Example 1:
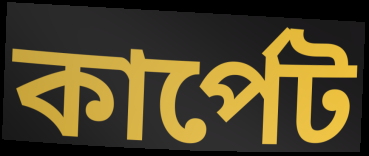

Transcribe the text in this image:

কার্পেট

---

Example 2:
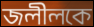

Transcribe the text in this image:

জলীলকে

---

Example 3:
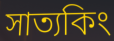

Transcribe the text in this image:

সাত্যকিং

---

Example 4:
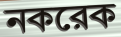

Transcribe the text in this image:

নকরেক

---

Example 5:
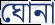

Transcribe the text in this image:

ঘোনা